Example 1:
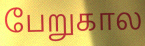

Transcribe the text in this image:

பேறுகால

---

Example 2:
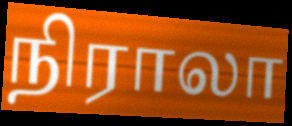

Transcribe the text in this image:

நிராலா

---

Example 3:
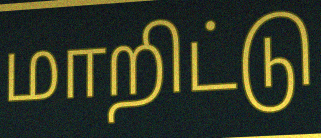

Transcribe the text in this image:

மாறிட்டு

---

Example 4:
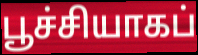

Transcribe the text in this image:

பூச்சியாகப்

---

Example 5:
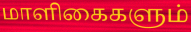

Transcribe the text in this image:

மாளிகைகளும்